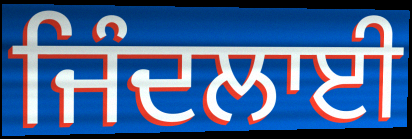
ਜਿੰਦਲਾਈ